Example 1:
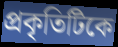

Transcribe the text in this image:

প্রকৃতিটিকে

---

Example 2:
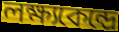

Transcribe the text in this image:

লক্ষ্যকেন্দ্রে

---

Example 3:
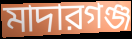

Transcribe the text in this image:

মাদারগঞ্জ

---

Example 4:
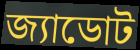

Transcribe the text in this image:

জ্যাডোট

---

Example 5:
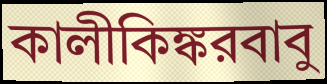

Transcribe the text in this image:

কালীকিঙ্করবাবু